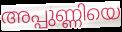
അപ്പുണ്ണിയെ